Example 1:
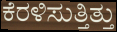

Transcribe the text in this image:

ಕೆರಳಿಸುತ್ತಿತ್ತು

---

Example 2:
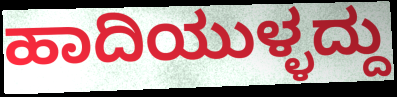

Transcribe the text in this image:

ಹಾದಿಯುಳ್ಳದ್ದು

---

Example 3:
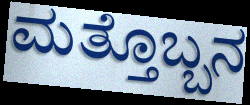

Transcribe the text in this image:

ಮತ್ತೊಬ್ಬನ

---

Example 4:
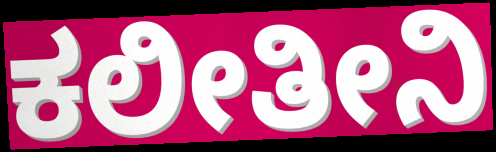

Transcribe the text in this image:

ಕಲೀತೀನಿ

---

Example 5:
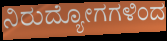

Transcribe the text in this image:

ನಿರುದ್ಯೋಗಗಳಿಂದ